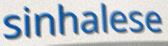
sinhalese